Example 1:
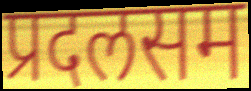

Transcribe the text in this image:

प्रदलसम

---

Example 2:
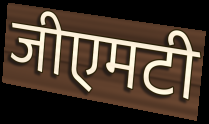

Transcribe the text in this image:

जीएमटी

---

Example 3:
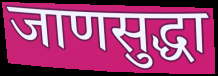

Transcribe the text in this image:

जाणसुद्धा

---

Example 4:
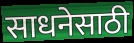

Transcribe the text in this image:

साधनेसाठी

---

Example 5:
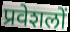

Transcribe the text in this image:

प्रवेशलों